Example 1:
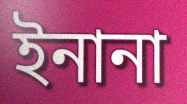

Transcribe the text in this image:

ইনানা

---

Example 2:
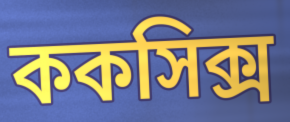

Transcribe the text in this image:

ককসিক্স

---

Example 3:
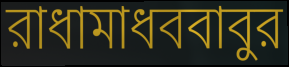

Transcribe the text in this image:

রাধামাধববাবুর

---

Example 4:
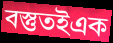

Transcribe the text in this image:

বস্তুতইএক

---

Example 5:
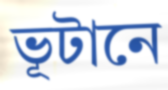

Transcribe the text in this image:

ভূটানে